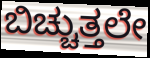
ಬಿಚ್ಚುತ್ತಲೇ